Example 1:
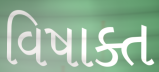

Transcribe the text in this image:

વિષાક્ત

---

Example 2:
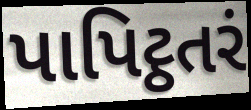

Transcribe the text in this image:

પાપિટ્ઠતરં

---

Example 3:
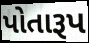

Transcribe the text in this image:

પોતારૂપ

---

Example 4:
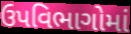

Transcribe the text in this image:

ઉપવિભાગોમાં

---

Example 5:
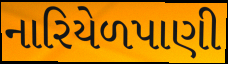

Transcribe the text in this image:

નારિયેળપાણી